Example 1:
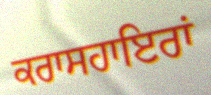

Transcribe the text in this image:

ਕਰਾਸਹਾਇਰਾਂ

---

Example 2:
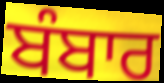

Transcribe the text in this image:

ਬੰਬਾਰ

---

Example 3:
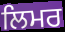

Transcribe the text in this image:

ਲਿਮਰ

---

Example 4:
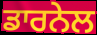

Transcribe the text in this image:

ਡਾਰਨੇਲ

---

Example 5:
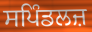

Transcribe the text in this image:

ਸਪਿੰਡਲਜ਼